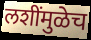
लशींमुळेच